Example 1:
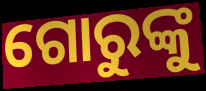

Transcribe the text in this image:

ଗୋରୁଙ୍କୁ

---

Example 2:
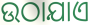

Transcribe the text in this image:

ଉଠାଯାଏ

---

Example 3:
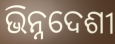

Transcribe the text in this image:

ଭିନ୍ନଦେଶୀ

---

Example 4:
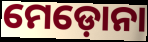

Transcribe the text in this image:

ମେଡ଼ୋନା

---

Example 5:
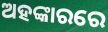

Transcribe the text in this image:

ଅହଙ୍କାରରେ